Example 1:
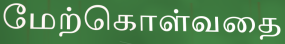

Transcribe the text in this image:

மேற்கொள்வதை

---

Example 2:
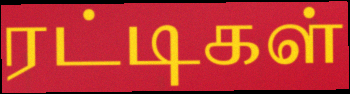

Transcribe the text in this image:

ரட்டிகள்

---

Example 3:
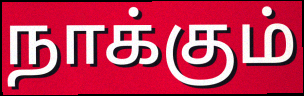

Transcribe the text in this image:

நாக்கும்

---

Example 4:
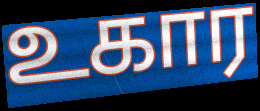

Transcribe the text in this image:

உகார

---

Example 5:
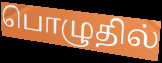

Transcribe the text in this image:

பொழுதில்